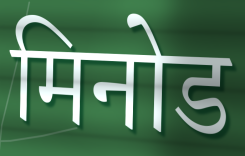
मिनोड